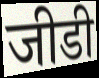
जीडी